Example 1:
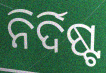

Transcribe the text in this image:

ନିର୍ଦିଷ୍ଟ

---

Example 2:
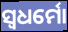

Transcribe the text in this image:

ସ୍ୱଧର୍ମୋ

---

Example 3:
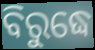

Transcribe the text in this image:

ବିରୁଦ୍ଧେ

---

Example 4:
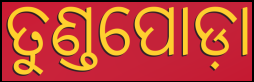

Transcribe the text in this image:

ତୁଣ୍ଡପୋଡ଼ା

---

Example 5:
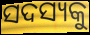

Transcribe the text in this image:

ସଦସ୍ୟକୁ